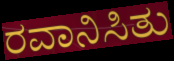
ರವಾನಿಸಿತು